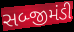
સબ્જીમંડી